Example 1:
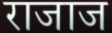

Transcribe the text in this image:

राजाज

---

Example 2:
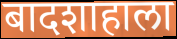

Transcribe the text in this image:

बादशाहाला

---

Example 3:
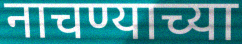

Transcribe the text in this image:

नाचण्याच्या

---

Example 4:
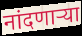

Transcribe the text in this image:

नांदणाऱ्या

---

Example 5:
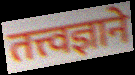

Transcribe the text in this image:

तत्त्वज्ञाने